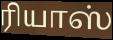
ரியாஸ்